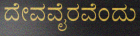
ದೇವವೈರವೆಂದು